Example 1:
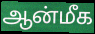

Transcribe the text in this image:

ஆன்மீக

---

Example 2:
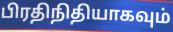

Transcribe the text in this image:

பிரதிநிதியாகவும்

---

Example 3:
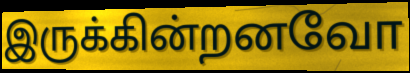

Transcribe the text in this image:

இருக்கின்றனவோ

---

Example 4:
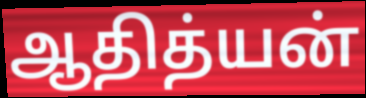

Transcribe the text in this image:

ஆதித்யன்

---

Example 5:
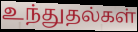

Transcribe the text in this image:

உந்துதல்கள்